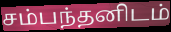
சம்பந்தனிடம்